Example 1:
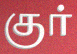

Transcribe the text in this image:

குர்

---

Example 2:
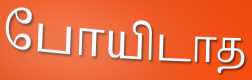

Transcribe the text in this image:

போயிடாத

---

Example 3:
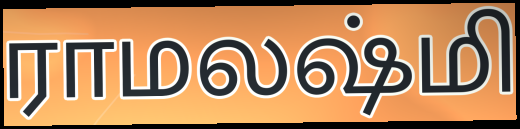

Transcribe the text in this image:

ராமலஷ்மி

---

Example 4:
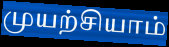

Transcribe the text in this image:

முயற்சியாம்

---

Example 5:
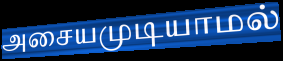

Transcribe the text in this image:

அசையமுடியாமல்